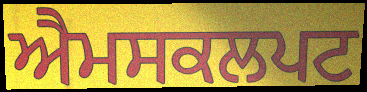
ਐਮਸਕਲਪਟ